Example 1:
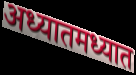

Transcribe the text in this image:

अध्यातमध्यात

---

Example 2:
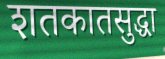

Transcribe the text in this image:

शतकातसुद्धा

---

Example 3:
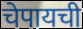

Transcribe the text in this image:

चेपायची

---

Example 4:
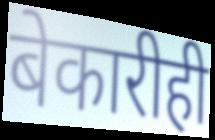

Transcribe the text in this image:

बेकारीही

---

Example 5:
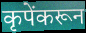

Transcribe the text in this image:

कृपेंकरून